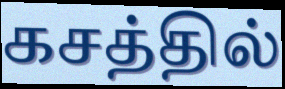
கசத்தில்